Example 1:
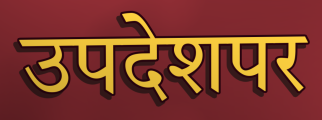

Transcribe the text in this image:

उपदेशपर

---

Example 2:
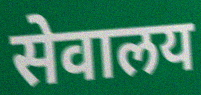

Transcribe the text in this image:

सेवालय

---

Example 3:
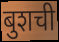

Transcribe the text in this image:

बुशची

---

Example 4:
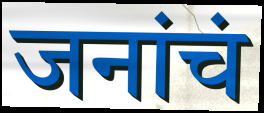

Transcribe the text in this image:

जनांचं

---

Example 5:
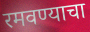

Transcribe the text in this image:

रमवण्याचा